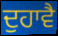
ਦੁਹਾਵੈ